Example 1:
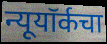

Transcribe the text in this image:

न्यूयॉर्कचा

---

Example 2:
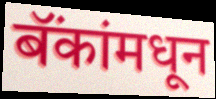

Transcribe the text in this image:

बॅंकांमधून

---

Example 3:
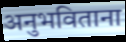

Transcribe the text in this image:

अनुभविताना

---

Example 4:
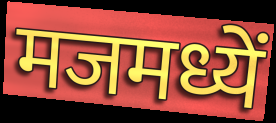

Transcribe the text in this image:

मजमध्यें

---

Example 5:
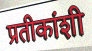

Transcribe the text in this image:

प्रतीकांशी